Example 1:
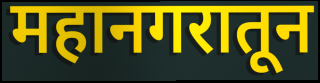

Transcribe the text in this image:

महानगरातून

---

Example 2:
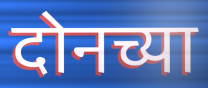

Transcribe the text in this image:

दोनच्या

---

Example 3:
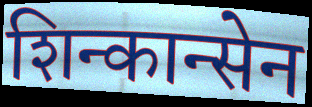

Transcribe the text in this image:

शिन्कान्सेन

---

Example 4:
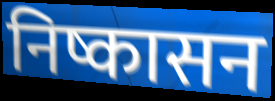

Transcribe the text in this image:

निष्कासन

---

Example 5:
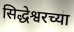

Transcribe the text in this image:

सिद्धेश्वरच्या